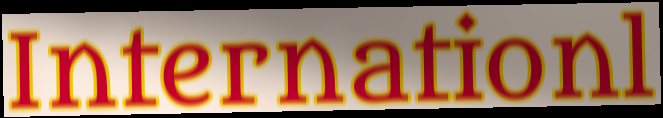
Internationl